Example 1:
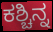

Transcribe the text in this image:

ಕಶ್ಚಿನ್ನ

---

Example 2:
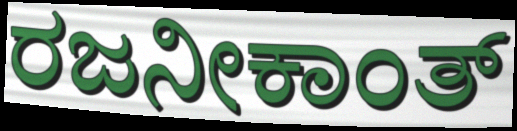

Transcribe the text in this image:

ರಜನೀಕಾಂತ್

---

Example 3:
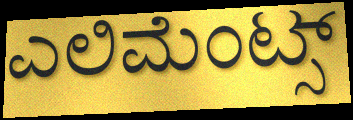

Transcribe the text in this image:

ಎಲಿಮೆಂಟ್ಸ್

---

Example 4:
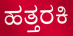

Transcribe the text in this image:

ಹತ್ತರಕಿ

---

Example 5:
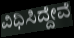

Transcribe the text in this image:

ವಿಧಿಸಿದ್ದೇವೆ